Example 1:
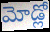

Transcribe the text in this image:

మోడ్లో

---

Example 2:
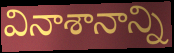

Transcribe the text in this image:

వినాశానాన్ని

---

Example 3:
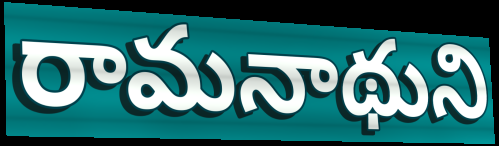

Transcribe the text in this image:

రామనాథుని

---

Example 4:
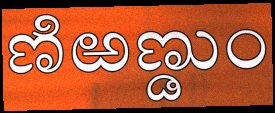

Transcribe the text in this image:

ణిఱణ్డుం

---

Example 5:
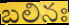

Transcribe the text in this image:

బలినః